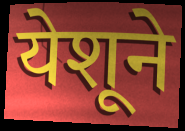
येशूने